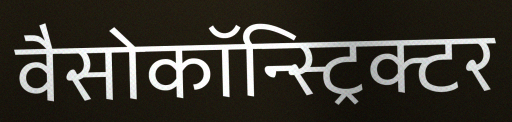
वैसोकॉन्स्ट्रिक्टर